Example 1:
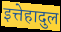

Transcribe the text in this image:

इत्तेहादुल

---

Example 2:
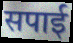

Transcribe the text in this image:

सपाई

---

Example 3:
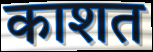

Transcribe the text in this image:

काशत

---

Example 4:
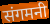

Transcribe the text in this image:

संगमनी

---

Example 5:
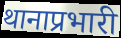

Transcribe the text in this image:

थानाप्रभारी